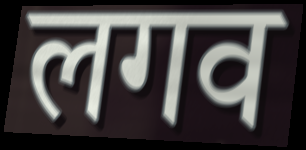
लगव